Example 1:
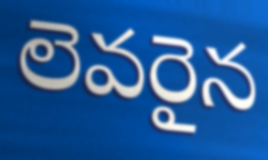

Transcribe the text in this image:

లెవరైన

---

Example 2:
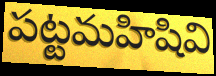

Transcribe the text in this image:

పట్టమహిషివి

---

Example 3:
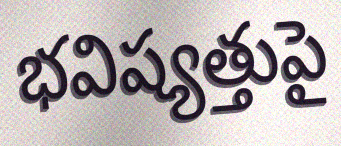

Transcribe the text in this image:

భవిష్యత్తుపై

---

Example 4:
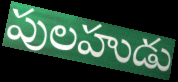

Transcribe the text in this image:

పులహుడు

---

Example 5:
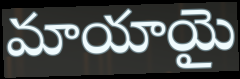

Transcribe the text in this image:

మాయాయై